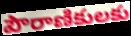
పౌరాణికులకు